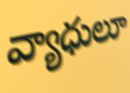
వ్యాధులూ